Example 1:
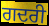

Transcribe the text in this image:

ਗਦਰੀ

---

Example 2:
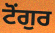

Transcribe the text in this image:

ਟੋਂਗੁਰ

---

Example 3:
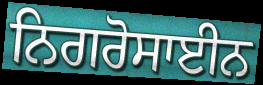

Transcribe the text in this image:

ਨਿਗਰੋਸਾਈਨ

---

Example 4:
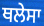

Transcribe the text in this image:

ਥਲੇਸਾ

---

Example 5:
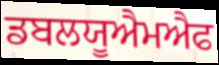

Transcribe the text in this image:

ਡਬਲਯੂਐਮਐਫ